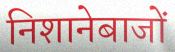
निशानेबाजों